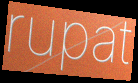
rupat